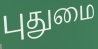
புதுமை